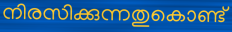
നിരസിക്കുന്നതുകൊണ്ട്